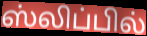
ஸ்லிப்பில்